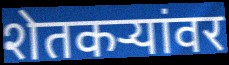
शेतकर्‍यांवर